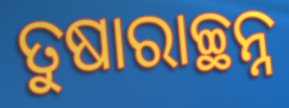
ତୁଷାରାଚ୍ଛନ୍ନ